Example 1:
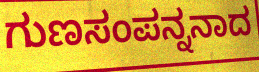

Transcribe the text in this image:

ಗುಣಸಂಪನ್ನನಾದ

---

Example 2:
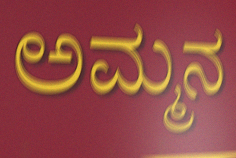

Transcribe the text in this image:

ಅಮ್ಮನ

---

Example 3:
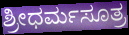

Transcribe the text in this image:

ಶ್ರೀಧರ್ಮಸೂತ್ರ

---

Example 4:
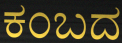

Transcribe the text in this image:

ಕಂಬದ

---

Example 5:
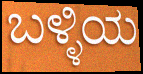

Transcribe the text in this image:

ಬಳ್ಳಿಯ